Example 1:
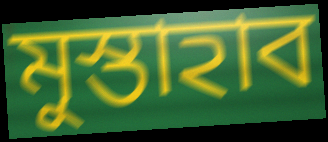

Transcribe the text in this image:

মুস্তাহাব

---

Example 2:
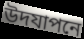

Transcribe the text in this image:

উদযাপনে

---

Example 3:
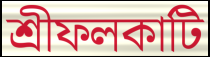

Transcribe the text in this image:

শ্রীফলকাটি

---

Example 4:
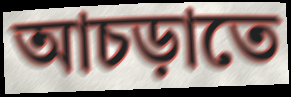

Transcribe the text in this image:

আচড়াতে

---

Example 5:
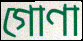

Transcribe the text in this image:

গোণা